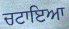
ਚਟਾਇਆ